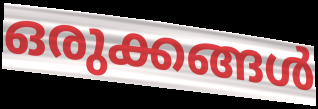
ഒരുക്കങ്ങൾ